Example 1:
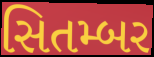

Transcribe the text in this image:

સિતમ્બર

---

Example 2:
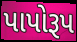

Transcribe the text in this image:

પાપોરૂપ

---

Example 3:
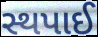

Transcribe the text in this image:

સ્થપાઈ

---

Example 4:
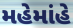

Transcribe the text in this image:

મહેમાંહે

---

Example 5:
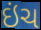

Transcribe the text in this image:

ઇંચ